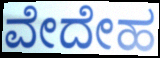
ವೇದೇಹ